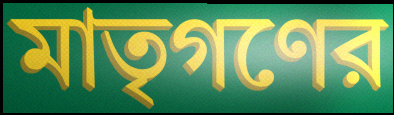
মাতৃগণের